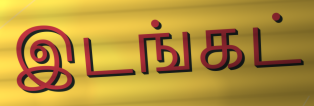
இடங்கட்